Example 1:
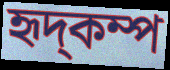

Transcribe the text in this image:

হৃদ্কম্প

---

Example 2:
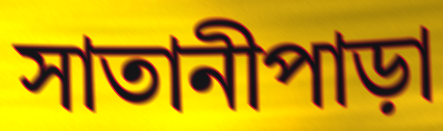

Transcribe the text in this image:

সাতানীপাড়া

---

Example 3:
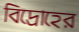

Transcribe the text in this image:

বিদ্রোহের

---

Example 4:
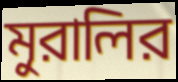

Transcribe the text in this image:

মুরালির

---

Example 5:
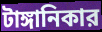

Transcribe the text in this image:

টাঙ্গানিকার